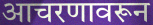
आचरणावरून